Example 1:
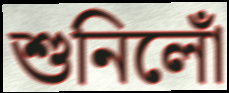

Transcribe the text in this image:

শুনিলোঁ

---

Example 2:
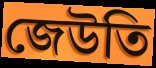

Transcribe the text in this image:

জেউতি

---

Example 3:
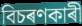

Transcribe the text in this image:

বিচৰণকাৰী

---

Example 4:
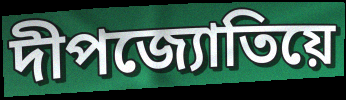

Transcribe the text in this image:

দীপজ্যোতিয়ে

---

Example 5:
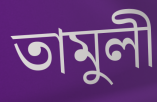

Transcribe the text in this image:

তামুলী